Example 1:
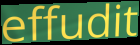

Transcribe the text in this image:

effudit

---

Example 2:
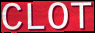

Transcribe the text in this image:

CLOT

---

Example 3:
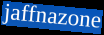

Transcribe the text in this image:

jaffnazone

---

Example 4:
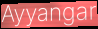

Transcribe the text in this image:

Ayyangar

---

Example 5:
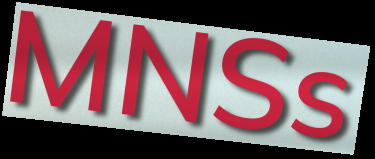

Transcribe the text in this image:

MNSs